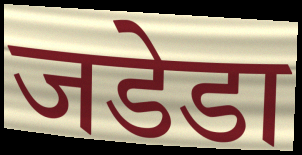
जडेडा